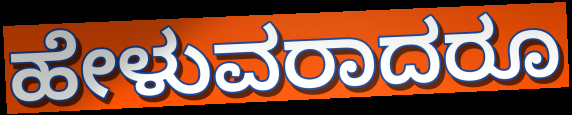
ಹೇಳುವರಾದರೂ